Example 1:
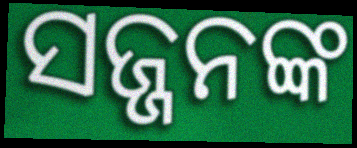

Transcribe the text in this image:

ସଜ୍ଜନଙ୍କ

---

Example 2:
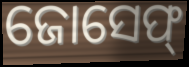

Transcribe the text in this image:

ଜୋସେଫ୍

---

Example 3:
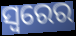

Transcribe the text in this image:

ସ୍ୱରେର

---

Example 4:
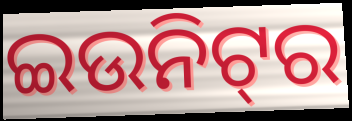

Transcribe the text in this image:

ଇଉନିଟ୍‍ର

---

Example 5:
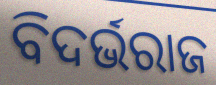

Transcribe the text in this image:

ବିଦର୍ଭରାଜ